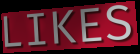
LIKES